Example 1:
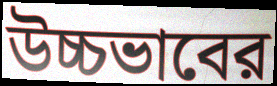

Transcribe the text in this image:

উচ্চভাবের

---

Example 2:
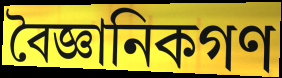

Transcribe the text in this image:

বৈজ্ঞানিকগণ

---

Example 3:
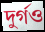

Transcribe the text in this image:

দুর্গও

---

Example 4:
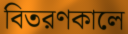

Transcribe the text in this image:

বিতরণকালে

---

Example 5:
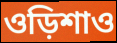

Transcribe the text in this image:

ওড়িশাও